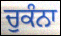
ਚੁਕੰਨਾ